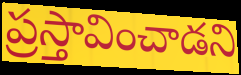
ప్రస్తావించాడని